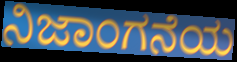
ನಿಜಾಂಗನೆಯ